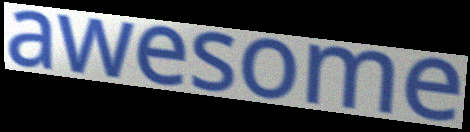
awesome